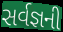
સર્વજ્ઞની